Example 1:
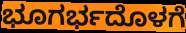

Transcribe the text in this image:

ಭೂಗರ್ಭದೊಳಗೆ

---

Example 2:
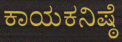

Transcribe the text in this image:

ಕಾಯಕನಿಷ್ಠೆ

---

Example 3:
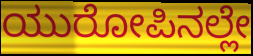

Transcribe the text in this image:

ಯುರೋಪಿನಲ್ಲೇ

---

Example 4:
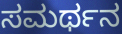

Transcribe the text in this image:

ಸಮರ್ಥನ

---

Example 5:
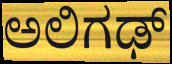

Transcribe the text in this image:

ಅಲಿಗಢ್